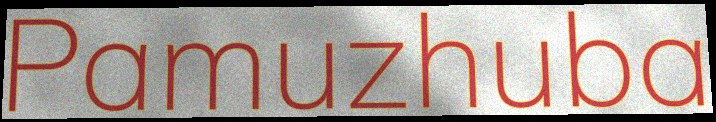
Pamuzhuba